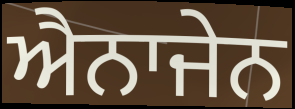
ਐਨਾਜੇਨ